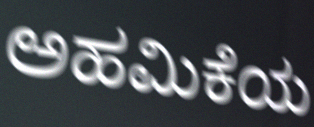
ಅಹಮಿಕೆಯ